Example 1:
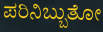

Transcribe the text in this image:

ಪರಿನಿಬ್ಬುತೋ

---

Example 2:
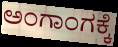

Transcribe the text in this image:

ಅಂಗಾಂಗಕ್ಕೆ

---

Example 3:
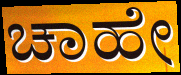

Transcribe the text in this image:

ಚಾಹೇ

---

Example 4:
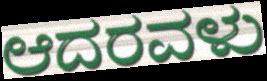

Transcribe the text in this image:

ಆದರವಳು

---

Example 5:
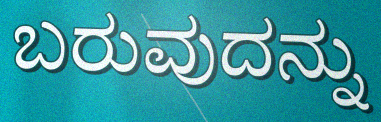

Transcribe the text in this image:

ಬರುವುದನ್ನು